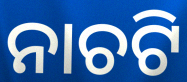
ନାଚଟି